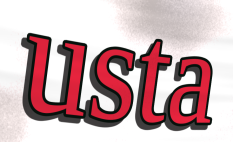
usta